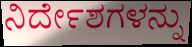
ನಿರ್ದೇಶಗಳನ್ನು